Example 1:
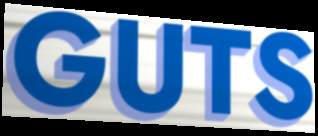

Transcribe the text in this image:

GUTS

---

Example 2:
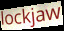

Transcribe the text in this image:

lockjaw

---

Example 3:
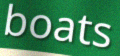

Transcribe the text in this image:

boats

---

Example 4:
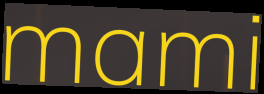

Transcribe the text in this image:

mami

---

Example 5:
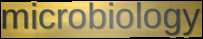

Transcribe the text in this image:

microbiology